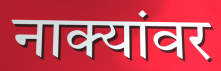
नाक्यांवर